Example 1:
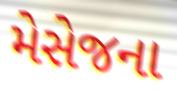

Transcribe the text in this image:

મેસેજના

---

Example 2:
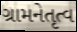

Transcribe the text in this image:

ગ્રામનેતૃત્વ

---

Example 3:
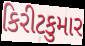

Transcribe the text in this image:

કિરીટકુમાર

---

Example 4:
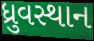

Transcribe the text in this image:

ધ્રુવસ્થાન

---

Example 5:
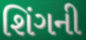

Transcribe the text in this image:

શિંગની